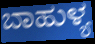
ಬಾಹುಳ್ಯ